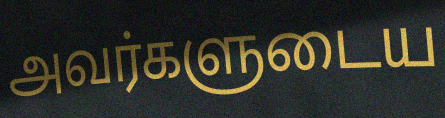
அவர்களுடைய